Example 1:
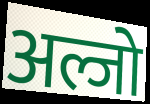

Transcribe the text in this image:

अल्जो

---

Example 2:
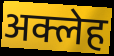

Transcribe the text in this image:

अक्लेह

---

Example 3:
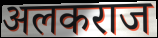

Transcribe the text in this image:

अलकराज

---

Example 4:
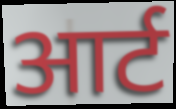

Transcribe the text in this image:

आर्ट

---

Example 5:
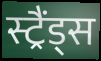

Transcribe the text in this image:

स्ट्रैंड्स